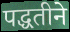
पद्धतीने